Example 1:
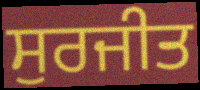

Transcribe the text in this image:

ਸੁਰਜੀਤ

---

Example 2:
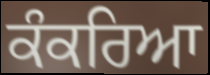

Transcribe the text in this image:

ਕੰਕਰਿਆ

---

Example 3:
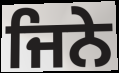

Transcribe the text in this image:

ਜਿਨੇ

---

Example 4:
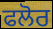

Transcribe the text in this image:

ਫਲੋਰ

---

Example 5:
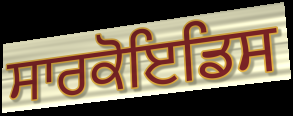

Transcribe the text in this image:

ਸਾਰਕੋਇਡਿਸ